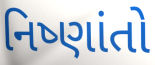
નિષ્ણાંતો